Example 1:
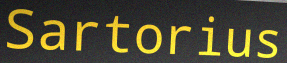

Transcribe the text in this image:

Sartorius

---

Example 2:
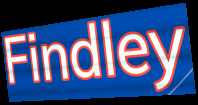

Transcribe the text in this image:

Findley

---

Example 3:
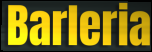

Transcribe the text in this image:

Barleria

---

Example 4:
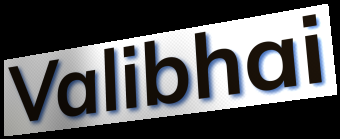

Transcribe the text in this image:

Valibhai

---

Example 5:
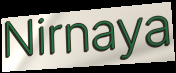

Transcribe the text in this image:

Nirnaya